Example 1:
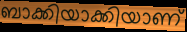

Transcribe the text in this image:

ബാക്കിയാക്കിയാണ്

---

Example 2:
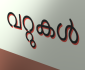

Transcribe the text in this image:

വറ്റുകൾ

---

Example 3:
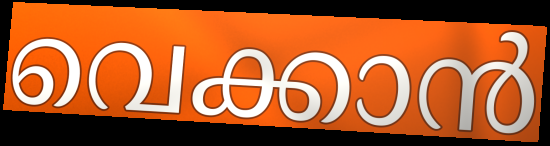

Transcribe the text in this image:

വെക്കാൻ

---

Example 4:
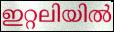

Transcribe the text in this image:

ഇറ്റലിയിൽ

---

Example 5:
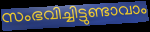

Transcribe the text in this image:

സംഭവിച്ചിട്ടുണ്ടാവാം